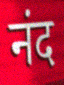
नंद